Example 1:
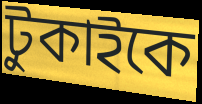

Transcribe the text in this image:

টুকাইকে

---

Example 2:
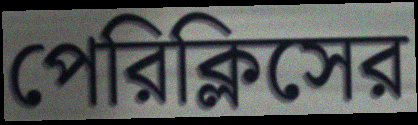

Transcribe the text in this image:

পেরিক্লিসের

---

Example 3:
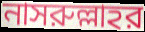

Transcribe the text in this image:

নাসরুল্লাহর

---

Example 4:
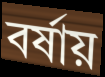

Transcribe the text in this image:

বর্ষায়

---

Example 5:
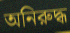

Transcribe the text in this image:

অনিরুদ্ধ